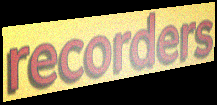
recorders